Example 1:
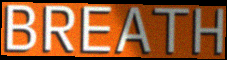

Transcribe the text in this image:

BREATH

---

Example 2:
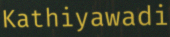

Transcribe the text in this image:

Kathiyawadi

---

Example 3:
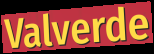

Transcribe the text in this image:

Valverde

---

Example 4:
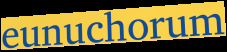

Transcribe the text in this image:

eunuchorum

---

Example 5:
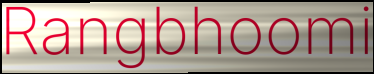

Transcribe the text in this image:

Rangbhoomi